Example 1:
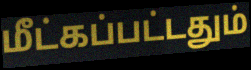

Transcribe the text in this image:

மீட்கப்பட்டதும்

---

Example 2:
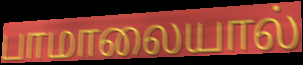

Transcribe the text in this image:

பாமாலையால்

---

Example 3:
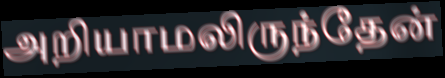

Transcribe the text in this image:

அறியாமலிருந்தேன்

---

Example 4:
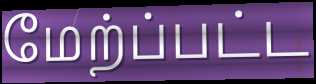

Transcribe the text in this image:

மேற்ப்பட்ட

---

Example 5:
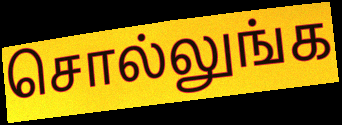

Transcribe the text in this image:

சொல்லுங்க